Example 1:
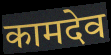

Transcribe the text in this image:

कामदेव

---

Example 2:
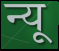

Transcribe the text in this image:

न्यू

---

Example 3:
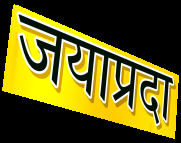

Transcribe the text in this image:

जयाप्रदा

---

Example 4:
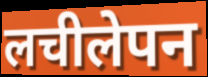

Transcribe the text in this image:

लचीलेपन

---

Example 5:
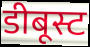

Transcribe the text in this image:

डीबूस्ट